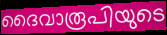
ദൈവാരൂപിയുടെ